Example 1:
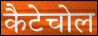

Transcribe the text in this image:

कैटेचोल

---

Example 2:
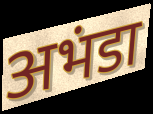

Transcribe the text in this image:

अभंडा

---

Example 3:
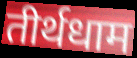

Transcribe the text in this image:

तीर्थधाम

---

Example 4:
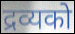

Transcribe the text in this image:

द्रव्यको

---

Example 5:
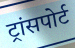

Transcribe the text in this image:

ट्रांसपोर्ट